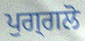
ਪੁਗ੍ਗਲੋ